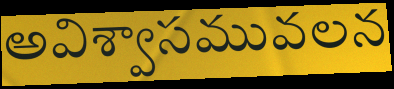
అవిశ్వాసమువలన